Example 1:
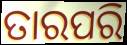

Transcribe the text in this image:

ତାରପରି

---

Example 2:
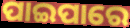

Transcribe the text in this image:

ପାଇପାରେ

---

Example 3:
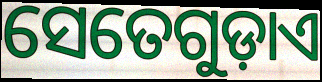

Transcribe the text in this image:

ସେତେଗୁଡ଼ାଏ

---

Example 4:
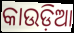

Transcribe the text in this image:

କାଉଡ଼ିଆ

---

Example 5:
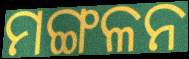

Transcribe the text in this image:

ମଙ୍ଗଳନ